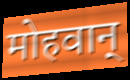
मोहवान्